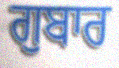
ਗੁਬਾਰ